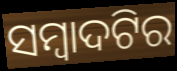
ସମ୍ବାଦଟିର